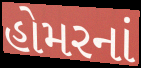
હોમરનાં